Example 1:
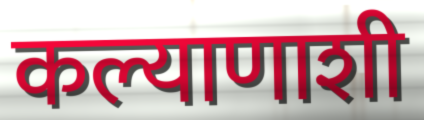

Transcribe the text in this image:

कल्याणाशी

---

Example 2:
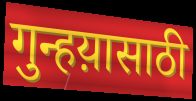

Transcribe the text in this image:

गुन्हय़ासाठी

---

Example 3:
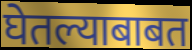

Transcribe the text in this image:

घेतल्याबाबत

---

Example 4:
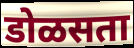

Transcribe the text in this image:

डोळसता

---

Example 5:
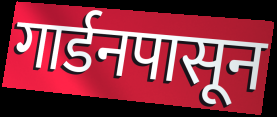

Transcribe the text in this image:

गार्डनपासून